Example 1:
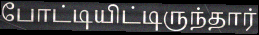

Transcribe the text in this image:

போட்டியிட்டிருந்தார்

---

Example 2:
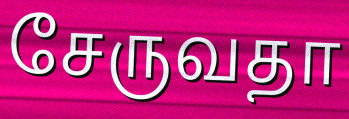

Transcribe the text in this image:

சேருவதா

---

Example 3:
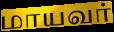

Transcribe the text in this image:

மாயவர்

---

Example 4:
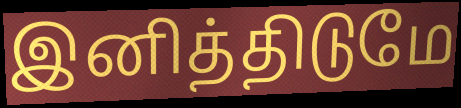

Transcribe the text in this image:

இனித்திடுமே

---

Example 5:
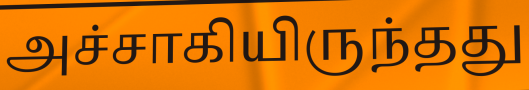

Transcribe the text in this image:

அச்சாகியிருந்தது